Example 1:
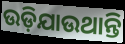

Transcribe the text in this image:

ଉଡ଼ିଯାଉଥାନ୍ତି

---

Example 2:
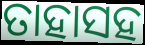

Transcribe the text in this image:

ତାହାସହ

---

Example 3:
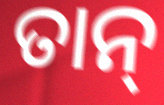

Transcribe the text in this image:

ତାନ୍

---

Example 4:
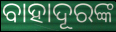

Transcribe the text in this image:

ବାହାଦୂରଙ୍କ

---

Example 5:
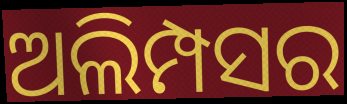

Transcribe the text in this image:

ଅଲିମ୍ପସର